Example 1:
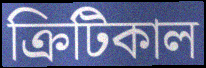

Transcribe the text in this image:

ক্রিটিকাল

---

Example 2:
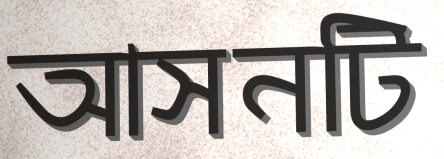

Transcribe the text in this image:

আসনটি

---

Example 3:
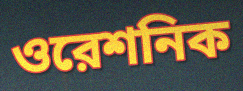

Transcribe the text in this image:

ওরেশনিক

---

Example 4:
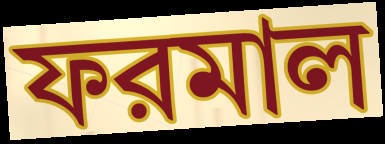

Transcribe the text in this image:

ফরমাল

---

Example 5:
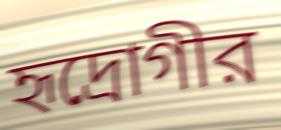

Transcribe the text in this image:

হৃদ্রোগীর